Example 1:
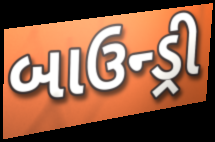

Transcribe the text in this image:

બાઉન્ડ્રી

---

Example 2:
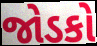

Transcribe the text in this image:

જોડકો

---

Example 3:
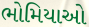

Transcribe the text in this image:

ભોમિયાઓ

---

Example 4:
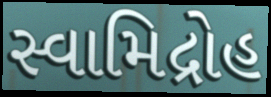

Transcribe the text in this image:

સ્વામિદ્રોહ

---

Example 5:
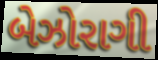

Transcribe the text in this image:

બેઝોરાગી